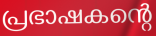
പ്രഭാഷകന്റെ